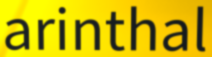
arinthal